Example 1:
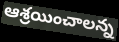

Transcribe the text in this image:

ఆశ్రయించాలన్న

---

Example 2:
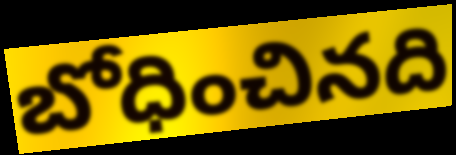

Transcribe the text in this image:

బోధించినది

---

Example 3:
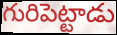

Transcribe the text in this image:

గురిపెట్టాడు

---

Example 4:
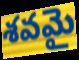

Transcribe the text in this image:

శవమై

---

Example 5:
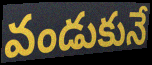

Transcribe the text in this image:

వండుకునే